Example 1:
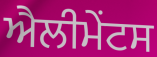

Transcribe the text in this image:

ਐਲੀਮੇੰਟਸ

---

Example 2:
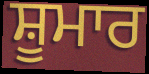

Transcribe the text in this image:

ਸ਼ੂਮਾਰ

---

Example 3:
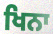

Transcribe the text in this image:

ਖਿਨਾ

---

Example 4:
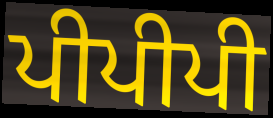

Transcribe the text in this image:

ਪੀਪੀਪੀ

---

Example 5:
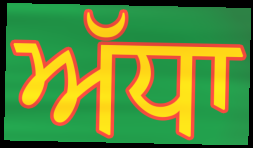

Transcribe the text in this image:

ਅੱਧਾ